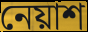
নেয়াশ